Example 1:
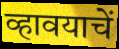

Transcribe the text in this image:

व्हावयाचें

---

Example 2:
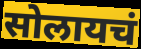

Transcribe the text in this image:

सोलायचं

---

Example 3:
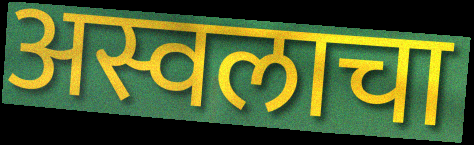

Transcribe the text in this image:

अस्वलाचा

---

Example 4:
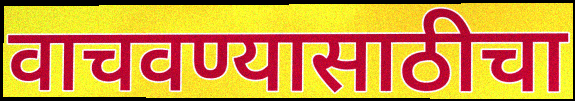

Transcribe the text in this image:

वाचवण्यासाठीचा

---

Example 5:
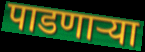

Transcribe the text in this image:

पाडणाऱ्या